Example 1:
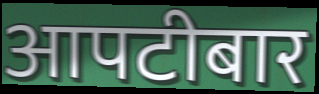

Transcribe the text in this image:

आपटीबार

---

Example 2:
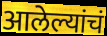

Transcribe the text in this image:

आलेल्यांचं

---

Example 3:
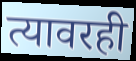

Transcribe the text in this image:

त्यावरही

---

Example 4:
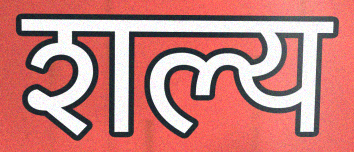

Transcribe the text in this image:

शल्‍य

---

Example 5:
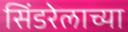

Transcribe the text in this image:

सिंडरेलाच्या